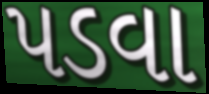
પડવા